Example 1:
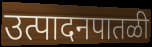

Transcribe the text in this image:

उत्पादनपातळी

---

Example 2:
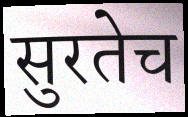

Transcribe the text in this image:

सुरतेच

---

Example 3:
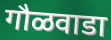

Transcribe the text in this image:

गौळवाडा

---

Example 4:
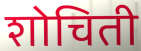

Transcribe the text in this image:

शोचिती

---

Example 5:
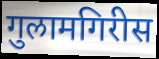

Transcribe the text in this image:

गुलामगिरीस